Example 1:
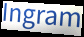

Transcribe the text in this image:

Ingram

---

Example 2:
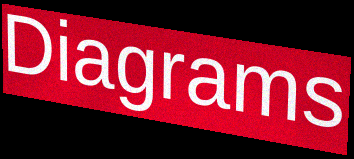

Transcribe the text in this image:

Diagrams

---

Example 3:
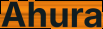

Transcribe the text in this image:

Ahura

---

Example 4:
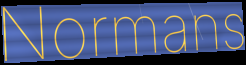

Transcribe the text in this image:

Normans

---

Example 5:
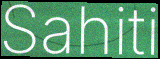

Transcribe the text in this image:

Sahiti